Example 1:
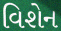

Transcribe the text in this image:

વિશેન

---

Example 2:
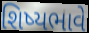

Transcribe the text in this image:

શિષ્યભાવે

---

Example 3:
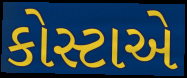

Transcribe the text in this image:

કોસ્ટાએ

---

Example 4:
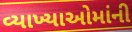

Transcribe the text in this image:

વ્યાખ્યાઓમાંની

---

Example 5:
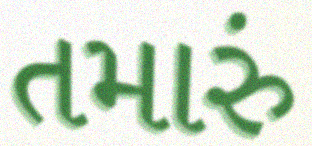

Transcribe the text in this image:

તમારું